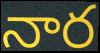
నార